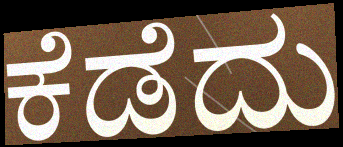
ಕೆಡೆದು